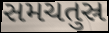
સમચતુસ્ર